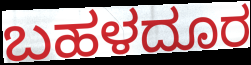
ಬಹಳದೂರ